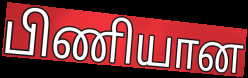
பிணியான